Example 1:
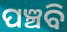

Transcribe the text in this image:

ପଞ୍ଚବି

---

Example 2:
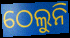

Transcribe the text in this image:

ଠେଲୁନି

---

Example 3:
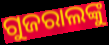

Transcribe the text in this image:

ଗୁଜରାଲଙ୍କୁ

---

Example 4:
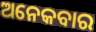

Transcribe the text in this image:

ଅନେକବାର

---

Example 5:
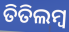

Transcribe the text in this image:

ତିତିଲମ୍ଵ